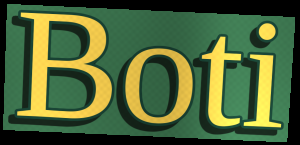
Boti